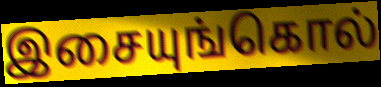
இசையுங்கொல்